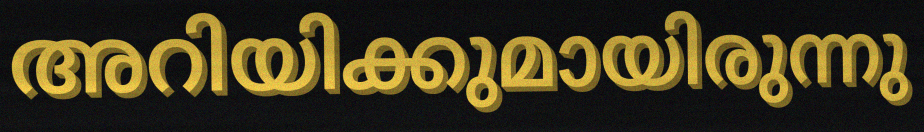
അറിയിക്കുമായിരുന്നു